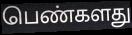
பெண்களது